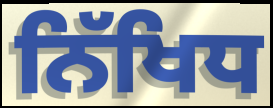
ਨਿੱਖਿਧ